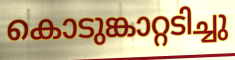
കൊടുങ്കാറ്റടിച്ചു